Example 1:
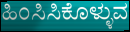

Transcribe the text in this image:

ಹಿಂಸಿಸಿಕೊಳ್ಳುವ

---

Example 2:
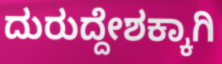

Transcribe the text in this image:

ದುರುದ್ದೇಶಕ್ಕಾಗಿ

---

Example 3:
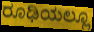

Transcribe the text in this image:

ರೂಢಿಯಲ್ಲೂ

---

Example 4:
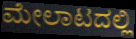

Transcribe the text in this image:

ಮೇಲಾಟದಲ್ಲಿ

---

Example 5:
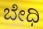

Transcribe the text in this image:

ಬೇಧಿ